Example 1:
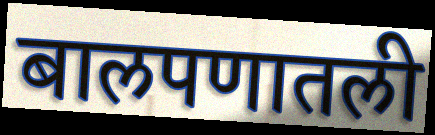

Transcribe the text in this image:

बालपणातली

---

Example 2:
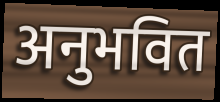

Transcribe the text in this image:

अनुभवित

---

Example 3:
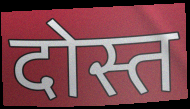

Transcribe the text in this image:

दोस्त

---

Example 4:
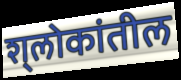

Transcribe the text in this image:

श्लोकांतील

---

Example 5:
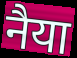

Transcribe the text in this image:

नैया